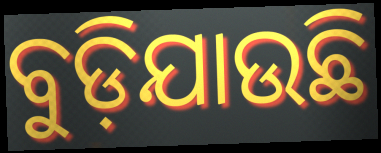
ବୁଡ଼ିଯାଉଛି